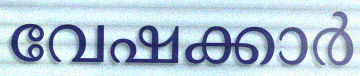
വേഷക്കാർ